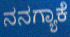
ನನಗ್ಯಾಕೆ